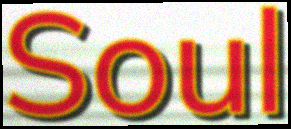
Soul